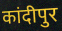
कांदीपुर